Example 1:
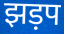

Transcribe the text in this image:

झड़प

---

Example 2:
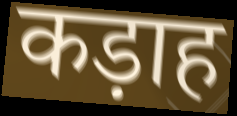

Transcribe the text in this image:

कड़ाह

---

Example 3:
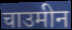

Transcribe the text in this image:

चाउमीन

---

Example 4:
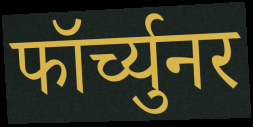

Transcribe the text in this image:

फॉर्च्युनर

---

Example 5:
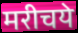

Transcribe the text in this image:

मरीचये